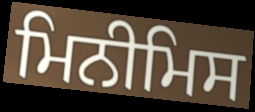
ਮਿਨੀਮਿਸ